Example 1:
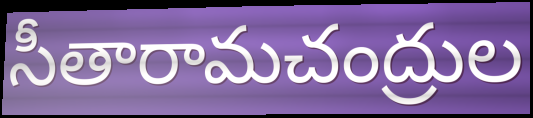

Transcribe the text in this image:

సీతారామచంద్రుల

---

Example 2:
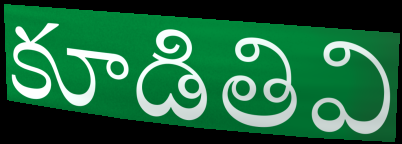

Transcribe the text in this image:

కూడితివి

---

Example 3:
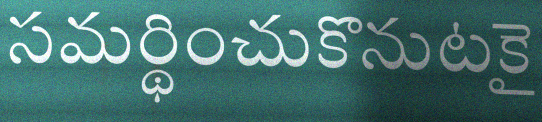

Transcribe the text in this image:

సమర్థించుకొనుటకై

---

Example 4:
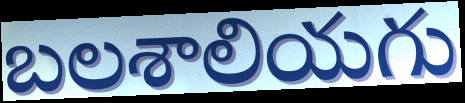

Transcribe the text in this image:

బలశాలియగు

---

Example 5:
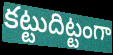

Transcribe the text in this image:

కట్టుదిట్టంగా